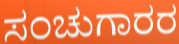
ಸಂಚುಗಾರರ